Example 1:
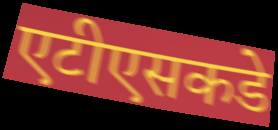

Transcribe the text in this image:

एटीएसकडे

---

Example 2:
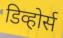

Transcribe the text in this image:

डिव्होर्स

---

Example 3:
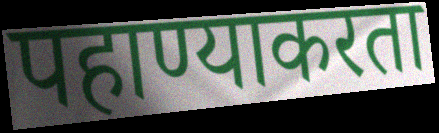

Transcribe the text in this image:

पहाण्याकरता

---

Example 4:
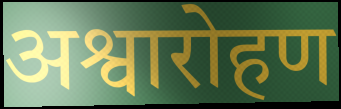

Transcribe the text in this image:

अश्वारोहण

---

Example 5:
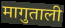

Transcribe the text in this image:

मागुताली